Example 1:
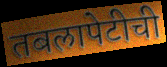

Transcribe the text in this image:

तबलापेटीची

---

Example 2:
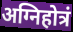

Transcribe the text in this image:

अग्निहोत्रं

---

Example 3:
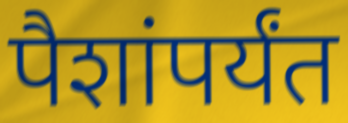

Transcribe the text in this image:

पैशांपर्यंत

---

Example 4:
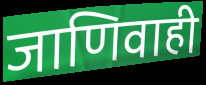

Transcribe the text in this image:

जाणिवाही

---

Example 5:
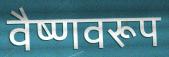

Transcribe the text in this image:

वैष्णवरूप